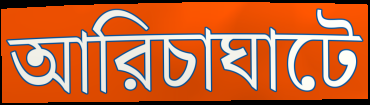
আরিচাঘাটে